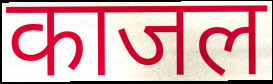
काजल